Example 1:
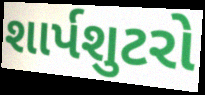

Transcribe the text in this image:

શાર્પશુટરો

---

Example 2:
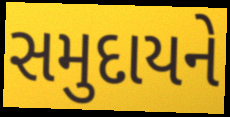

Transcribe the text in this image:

સમુદાયને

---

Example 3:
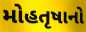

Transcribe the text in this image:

મોહતૃષાનો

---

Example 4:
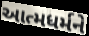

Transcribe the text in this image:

આત્મધર્મને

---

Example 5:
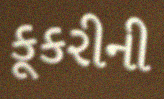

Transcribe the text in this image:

કૂકરીની